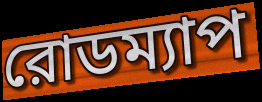
রোডম্যাপ